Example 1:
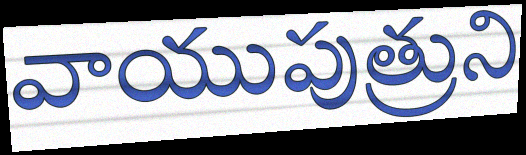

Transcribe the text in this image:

వాయుపుత్రుని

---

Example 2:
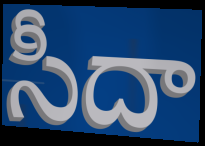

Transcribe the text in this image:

సీదా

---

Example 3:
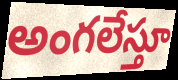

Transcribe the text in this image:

అంగలేస్తూ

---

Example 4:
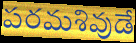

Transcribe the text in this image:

పరమశివుడే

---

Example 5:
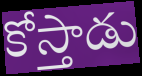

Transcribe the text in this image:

కోస్తాడు